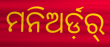
ମନିଅର୍ଡ଼ର୍